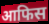
आफिस